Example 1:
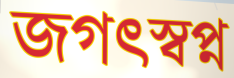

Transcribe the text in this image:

জগৎস্বপ্ন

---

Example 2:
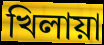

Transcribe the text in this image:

খিলায়া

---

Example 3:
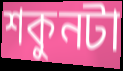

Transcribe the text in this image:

শকুনটা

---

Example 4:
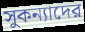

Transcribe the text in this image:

সুকন্যাদের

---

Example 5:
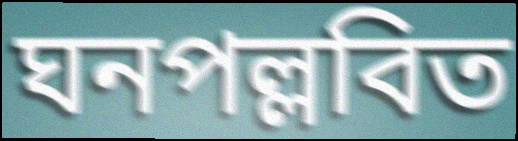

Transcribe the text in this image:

ঘনপল্লবিত